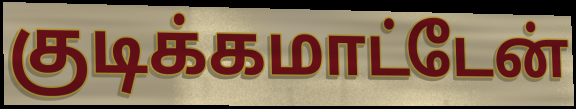
குடிக்கமாட்டேன்